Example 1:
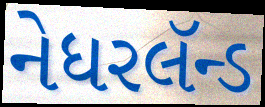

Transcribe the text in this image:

નેધરલૅન્ડ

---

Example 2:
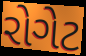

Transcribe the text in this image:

રોગેટ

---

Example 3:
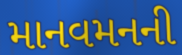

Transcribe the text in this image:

માનવમનની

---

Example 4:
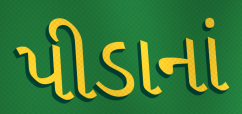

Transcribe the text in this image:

પીડાનાં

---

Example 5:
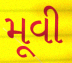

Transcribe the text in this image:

મૂવી